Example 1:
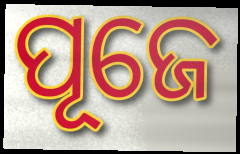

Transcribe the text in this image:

ପୂଜେ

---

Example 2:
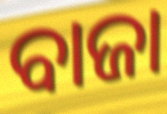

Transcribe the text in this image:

ବାଜା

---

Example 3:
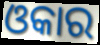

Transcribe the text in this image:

ଓକାର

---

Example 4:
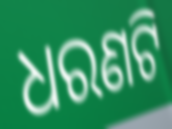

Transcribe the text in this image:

ଧରଣଟି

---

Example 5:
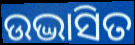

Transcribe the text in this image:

ଉଦ୍ଭାସିତ